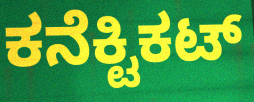
ಕನೆಕ್ಟಿಕಟ್